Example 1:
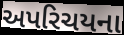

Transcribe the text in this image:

અપરિચયના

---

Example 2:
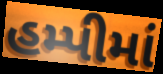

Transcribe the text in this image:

હમ્પીમાં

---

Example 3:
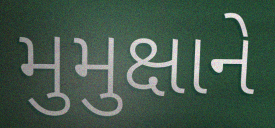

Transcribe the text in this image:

મુમુક્ષાને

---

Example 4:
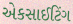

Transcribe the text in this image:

એકસાઈટિંગ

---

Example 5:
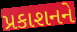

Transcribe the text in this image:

પ્રકાશનને